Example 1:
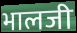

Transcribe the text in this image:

भालजी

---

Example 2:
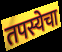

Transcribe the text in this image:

तपस्येचा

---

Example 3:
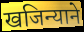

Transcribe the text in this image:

खजिन्याने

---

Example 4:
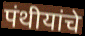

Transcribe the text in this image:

पंथीयांचे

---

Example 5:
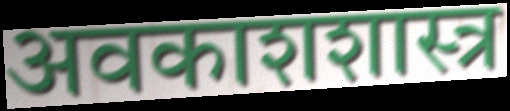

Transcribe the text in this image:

अवकाशशास्त्र